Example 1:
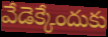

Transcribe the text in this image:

వేడెక్కేందుకు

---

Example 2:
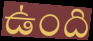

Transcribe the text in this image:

ఉంది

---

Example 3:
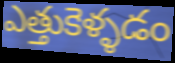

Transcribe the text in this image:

ఎత్తుకెళ్ళడం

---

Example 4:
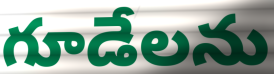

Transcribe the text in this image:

గూడేలను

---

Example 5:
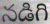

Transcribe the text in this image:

నడిగి